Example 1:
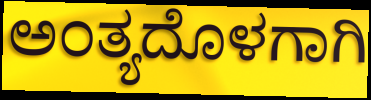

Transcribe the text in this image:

ಅಂತ್ಯದೊಳಗಾಗಿ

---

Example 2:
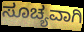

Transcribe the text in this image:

ಸೂಚ್ಯವಾಗಿ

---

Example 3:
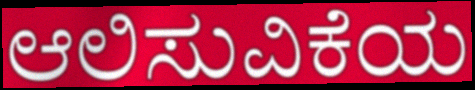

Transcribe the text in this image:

ಆಲಿಸುವಿಕೆಯ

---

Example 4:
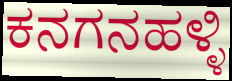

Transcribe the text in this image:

ಕನಗನಹಳ್ಳಿ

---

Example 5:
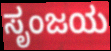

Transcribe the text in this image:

ಸೃಂಜಯ